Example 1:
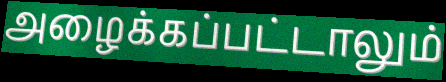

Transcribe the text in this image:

அழைக்கப்பட்டாலும்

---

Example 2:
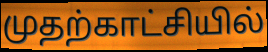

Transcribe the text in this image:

முதற்காட்சியில்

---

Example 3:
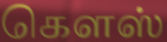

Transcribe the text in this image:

கௌஸ்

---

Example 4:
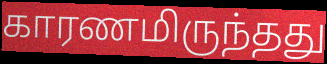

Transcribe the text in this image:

காரணமிருந்தது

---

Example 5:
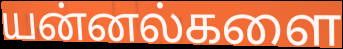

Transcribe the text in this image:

யன்னல்களை